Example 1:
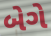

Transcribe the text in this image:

બેગે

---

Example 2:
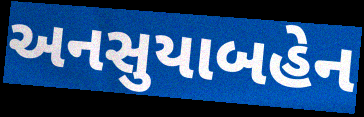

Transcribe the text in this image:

અનસુયાબહેન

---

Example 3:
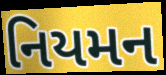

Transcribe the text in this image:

નિયમન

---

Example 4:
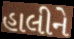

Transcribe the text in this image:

હાલીને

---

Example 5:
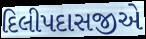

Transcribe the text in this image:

દિલીપદાસજીએ